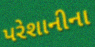
પરેશાનીના